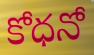
కోధనో